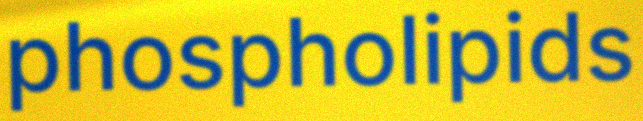
phospholipids